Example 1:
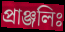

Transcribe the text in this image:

প্রাঞ্জলিঃ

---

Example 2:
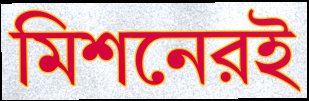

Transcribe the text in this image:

মিশনেরই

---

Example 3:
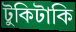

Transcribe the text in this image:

টুকিটাকি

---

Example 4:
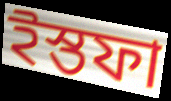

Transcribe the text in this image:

ইস্তফা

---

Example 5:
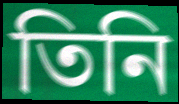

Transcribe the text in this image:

তিনি